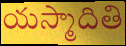
యస్మాదితి